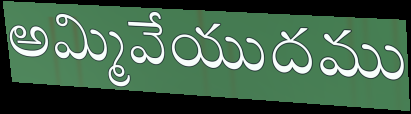
అమ్మివేయుదము